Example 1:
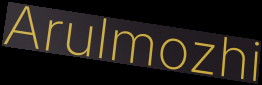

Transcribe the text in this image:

Arulmozhi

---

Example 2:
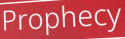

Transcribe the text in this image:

Prophecy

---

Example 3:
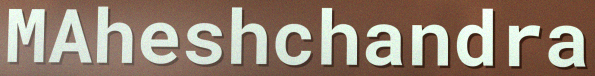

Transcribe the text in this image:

MAheshchandra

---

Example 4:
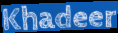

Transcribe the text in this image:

Khadeer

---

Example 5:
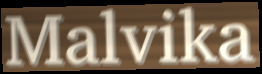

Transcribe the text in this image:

Malvika